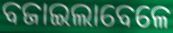
ବଜାଇଲାବେଳେ